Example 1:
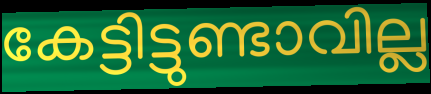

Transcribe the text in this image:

കേട്ടിട്ടുണ്ടാവില്ല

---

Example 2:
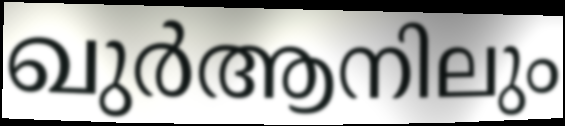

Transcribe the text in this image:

ഖുർആനിലും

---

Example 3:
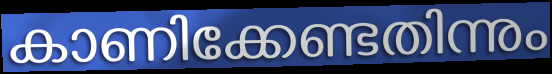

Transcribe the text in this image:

കാണിക്കേണ്ടതിന്നും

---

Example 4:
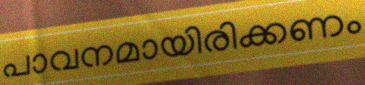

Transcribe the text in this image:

പാവനമായിരിക്കണം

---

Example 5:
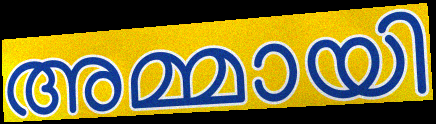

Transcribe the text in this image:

അമ്മായി